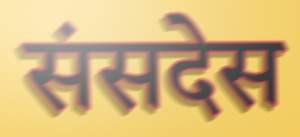
संसदेस